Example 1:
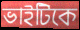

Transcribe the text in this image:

ভাইটিকে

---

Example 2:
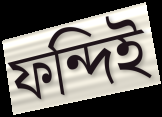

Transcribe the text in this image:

ফন্দিই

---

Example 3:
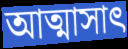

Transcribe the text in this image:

আত্মাসাৎ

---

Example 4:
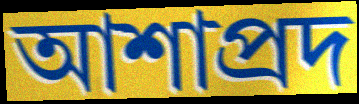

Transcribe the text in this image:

আশাপ্রদ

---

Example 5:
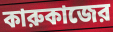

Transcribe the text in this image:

কারুকাজের